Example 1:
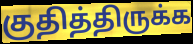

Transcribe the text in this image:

குதித்திருக்க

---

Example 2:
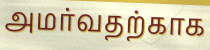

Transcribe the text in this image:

அமர்வதற்காக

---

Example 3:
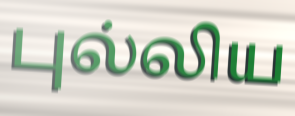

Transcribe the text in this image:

புல்லிய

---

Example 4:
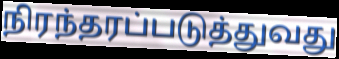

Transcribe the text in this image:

நிரந்தரப்படுத்துவது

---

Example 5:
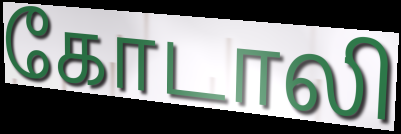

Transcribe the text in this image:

கோடாலி